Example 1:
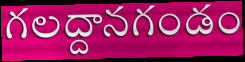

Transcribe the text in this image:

గలద్దానగండం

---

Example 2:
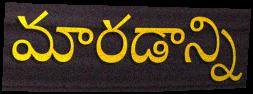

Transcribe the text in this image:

మారడాన్ని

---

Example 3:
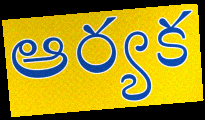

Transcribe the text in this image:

ఆర్యక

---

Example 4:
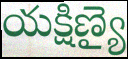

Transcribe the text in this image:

యక్షిణ్యై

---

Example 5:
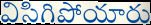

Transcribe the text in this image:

విసిగిపోయారు